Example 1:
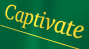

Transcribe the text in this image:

Captivate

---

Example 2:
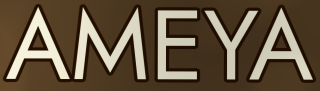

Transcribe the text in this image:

AMEYA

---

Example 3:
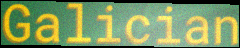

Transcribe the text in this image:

Galician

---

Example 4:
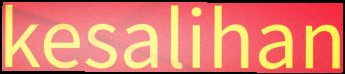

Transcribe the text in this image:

kesalihan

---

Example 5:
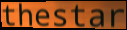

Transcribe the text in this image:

thestar